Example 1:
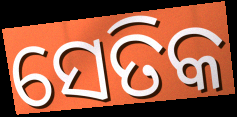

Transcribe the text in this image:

ସେତିକ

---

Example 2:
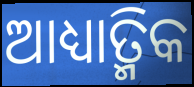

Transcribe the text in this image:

ଆଧ୍ୟାତ୍ମିକ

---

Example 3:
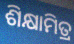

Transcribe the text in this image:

ଶିକ୍ଷାମିତ୍ର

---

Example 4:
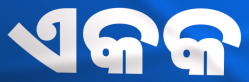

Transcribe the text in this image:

ଏକକ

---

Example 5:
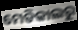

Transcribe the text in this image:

ମେଡିକାଲରୁ